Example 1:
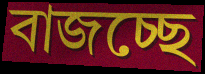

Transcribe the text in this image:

বাজচ্ছে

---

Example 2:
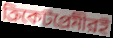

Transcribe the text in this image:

ক্রিকেটপ্রেমীরই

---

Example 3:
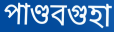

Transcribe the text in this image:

পাণ্ডবগুহা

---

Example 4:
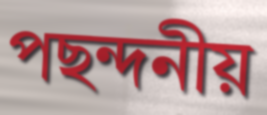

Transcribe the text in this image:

পছন্দনীয়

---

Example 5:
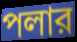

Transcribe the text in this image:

পলার